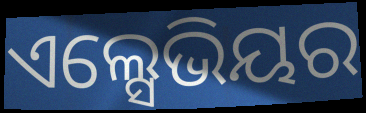
ଏଲ୍ସେଭିୟର